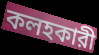
কলহকারী